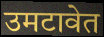
उमटावेत